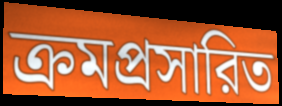
ক্রমপ্রসারিত